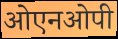
ओएनओपी